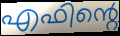
എഫിന്റെ